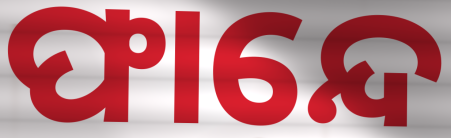
ଫାନ୍ଦେ